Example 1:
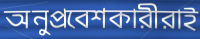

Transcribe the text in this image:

অনুপ্রবেশকারীরাই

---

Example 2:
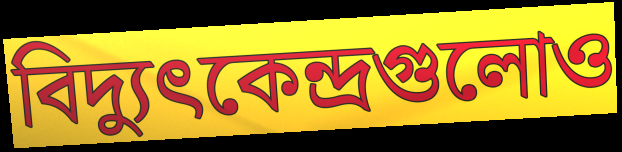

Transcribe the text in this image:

বিদ্যুৎকেন্দ্রগুলোও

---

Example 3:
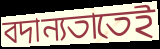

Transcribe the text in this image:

বদান্যতাতেই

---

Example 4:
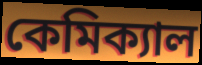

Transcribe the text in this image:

কেমিক্যাল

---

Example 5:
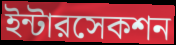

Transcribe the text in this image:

ইন্টারসেকশন